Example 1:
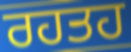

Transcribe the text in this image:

ਰਹਤਹ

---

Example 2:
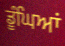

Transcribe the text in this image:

ਡੂੰਘਿਆਂ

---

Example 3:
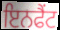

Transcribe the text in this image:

ਇਨਫੈਂਟ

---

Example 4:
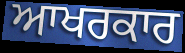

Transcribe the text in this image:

ਆਖਰਕਾਰ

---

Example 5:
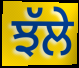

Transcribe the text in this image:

ਝੱਲੇ